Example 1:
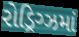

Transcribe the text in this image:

રોડ્રિગ્ઝમાં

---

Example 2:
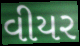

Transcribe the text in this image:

વીયર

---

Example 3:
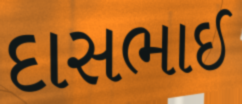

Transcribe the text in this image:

દાસભાઈ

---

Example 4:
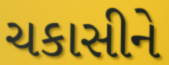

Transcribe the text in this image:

ચકાસીને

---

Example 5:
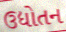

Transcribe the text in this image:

ઉદ્યોતન